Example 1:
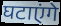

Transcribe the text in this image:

घटाएंगे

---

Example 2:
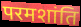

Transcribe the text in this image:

परमशांति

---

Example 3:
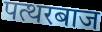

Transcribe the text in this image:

पत्थरबाज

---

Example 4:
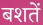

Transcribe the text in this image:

बशतें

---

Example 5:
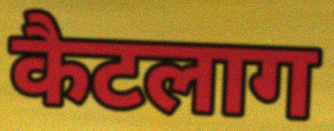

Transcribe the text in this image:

कैटलाग